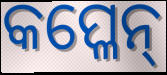
କପ୍ଳେନ୍